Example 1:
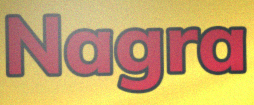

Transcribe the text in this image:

Nagra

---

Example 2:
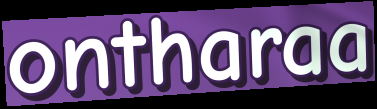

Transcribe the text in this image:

ontharaa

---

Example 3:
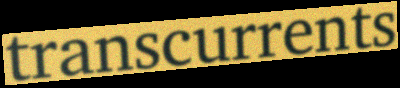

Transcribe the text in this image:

transcurrents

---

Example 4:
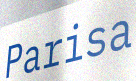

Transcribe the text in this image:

Parisa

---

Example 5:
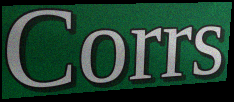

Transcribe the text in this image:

Corrs